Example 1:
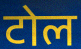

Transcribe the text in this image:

टोल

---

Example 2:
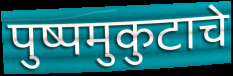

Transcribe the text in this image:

पुष्पमुकुटाचे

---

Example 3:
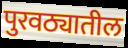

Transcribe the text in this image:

पुरवठ्यातील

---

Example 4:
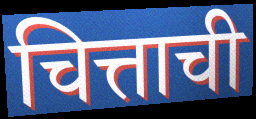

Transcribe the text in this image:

चित्ताची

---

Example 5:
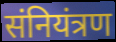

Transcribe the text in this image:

संनियंत्रण